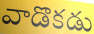
వాడొకడు